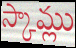
స్కామ్లు